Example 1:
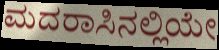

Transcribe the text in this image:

ಮದರಾಸಿನಲ್ಲಿಯೇ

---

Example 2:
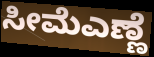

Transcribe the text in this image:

ಸೀಮೆಎಣ್ಣೆ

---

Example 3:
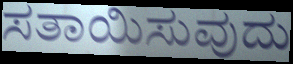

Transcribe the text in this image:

ಸತಾಯಿಸುವುದು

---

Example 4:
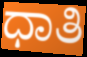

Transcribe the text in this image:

ಧಾತಿ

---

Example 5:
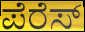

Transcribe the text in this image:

ಪೆರೆಸ್